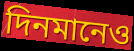
দিনমানেও